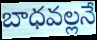
బాధవల్లనే